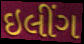
ઇલીંગ